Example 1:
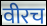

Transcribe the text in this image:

वीरच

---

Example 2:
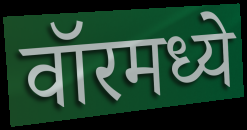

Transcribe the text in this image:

वॉरमध्ये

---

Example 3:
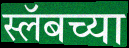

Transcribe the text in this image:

स्लॅबच्या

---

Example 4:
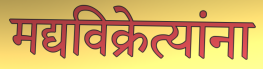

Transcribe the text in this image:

मद्यविक्रेत्यांना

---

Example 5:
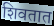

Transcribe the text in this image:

शिवतात